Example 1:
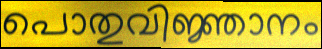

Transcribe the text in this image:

പൊതുവിജ്ഞാനം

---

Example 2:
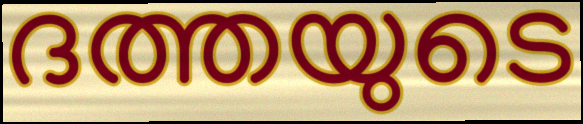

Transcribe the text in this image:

ദത്തയുടെ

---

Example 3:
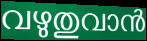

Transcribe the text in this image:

വഴുതുവാൻ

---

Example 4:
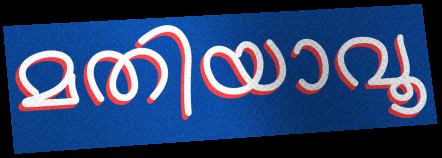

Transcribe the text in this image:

മതിയാവൂ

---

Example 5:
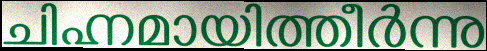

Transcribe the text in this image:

ചിഹ്നമായിത്തീർന്നു